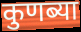
कुणब्या